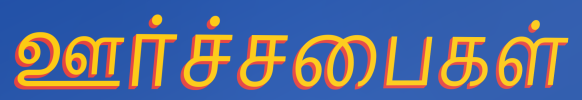
ஊர்ச்சபைகள்